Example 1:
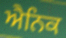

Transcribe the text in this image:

ਐਨਿਕ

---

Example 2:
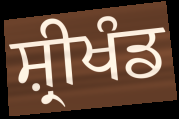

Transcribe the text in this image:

ਸ਼੍ਰੀਖੰਡ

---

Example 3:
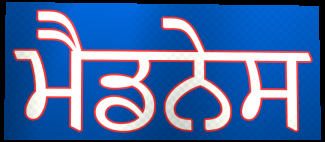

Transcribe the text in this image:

ਮੈਡਨੇਸ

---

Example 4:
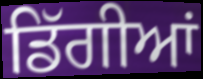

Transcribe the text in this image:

ਡਿੱਗੀਆਂ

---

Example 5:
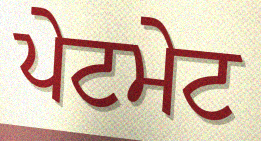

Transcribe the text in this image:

ਪੇਟਮੇਟ